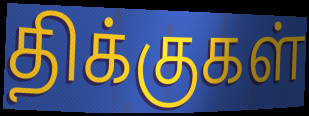
திக்குகள்